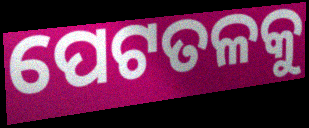
ପେଟତଳକୁ